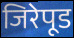
जिरेपूड